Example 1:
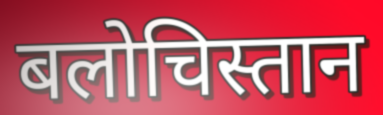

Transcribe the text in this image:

बलोचिस्तान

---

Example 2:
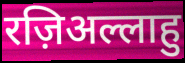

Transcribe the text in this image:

रज़िअल्लाहु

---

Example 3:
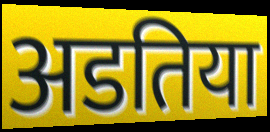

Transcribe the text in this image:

अडतिया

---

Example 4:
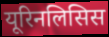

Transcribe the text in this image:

यूरिनलिसिस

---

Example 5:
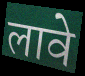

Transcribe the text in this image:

लावे